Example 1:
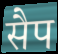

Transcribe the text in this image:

सैप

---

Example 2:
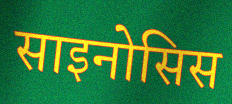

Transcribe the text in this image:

साइनोसिस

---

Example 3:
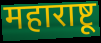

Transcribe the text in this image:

महाराष्टू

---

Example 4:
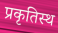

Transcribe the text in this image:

प्रकृतिस्थ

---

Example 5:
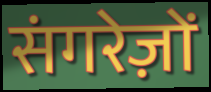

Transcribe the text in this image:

संगरेज़ों